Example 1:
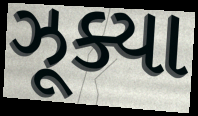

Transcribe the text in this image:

ઝૂક્યા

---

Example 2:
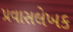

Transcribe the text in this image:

પ્રવાસલેખક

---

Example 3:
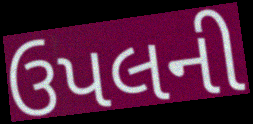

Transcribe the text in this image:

ઉપલની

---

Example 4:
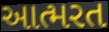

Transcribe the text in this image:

આત્મરત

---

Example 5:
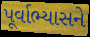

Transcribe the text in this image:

પૂર્વાભ્યાસને